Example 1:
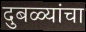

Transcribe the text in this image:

दुबळ्यांचा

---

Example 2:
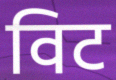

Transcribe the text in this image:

विट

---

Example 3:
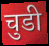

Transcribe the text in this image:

चुडी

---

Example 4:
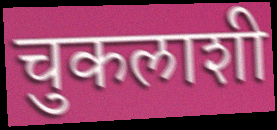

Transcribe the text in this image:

चुकलाशी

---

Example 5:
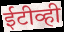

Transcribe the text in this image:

ईटीव्ही